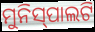
ମୁନିସ୍‍ପାଲଟି